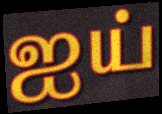
ஐய்